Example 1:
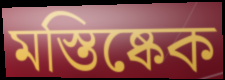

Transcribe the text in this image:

মস্তিষ্কেক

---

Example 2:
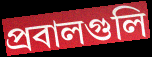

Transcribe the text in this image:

প্রবালগুলি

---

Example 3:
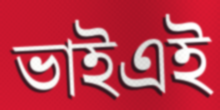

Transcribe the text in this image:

ভাইএই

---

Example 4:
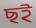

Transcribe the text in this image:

ছই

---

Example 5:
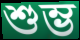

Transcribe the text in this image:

শুম্ভ